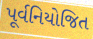
પૂર્વનિયોજિત